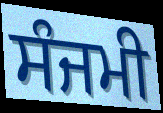
ਸੰਜਮੀ